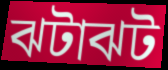
ঝটাঝট